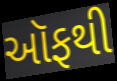
ઑફથી